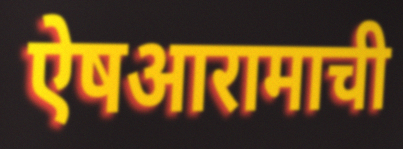
ऐषआरामाची